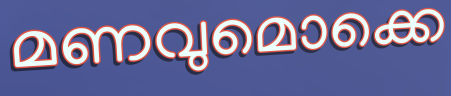
മണവുമൊക്കെ